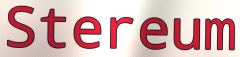
Stereum